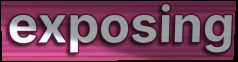
exposing